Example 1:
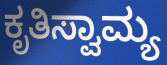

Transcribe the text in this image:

ಕೃತಿಸ್ವಾಮ್ಯ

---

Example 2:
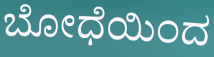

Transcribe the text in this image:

ಬೋಧೆಯಿಂದ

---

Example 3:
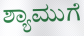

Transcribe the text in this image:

ಶ್ಯಾಮುಗೆ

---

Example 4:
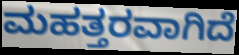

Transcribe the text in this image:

ಮಹತ್ತರವಾಗಿದೆ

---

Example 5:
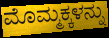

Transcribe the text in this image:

ಮೊಮ್ಮಕ್ಕಳನ್ನು